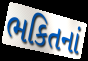
ભકિતનાં